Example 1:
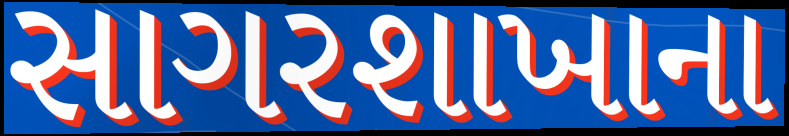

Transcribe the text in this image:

સાગરશાખાના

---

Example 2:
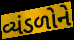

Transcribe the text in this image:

વ્યંડળોને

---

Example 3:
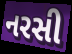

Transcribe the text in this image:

નરસી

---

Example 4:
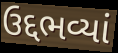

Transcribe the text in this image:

ઉદ્દભવ્યાં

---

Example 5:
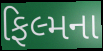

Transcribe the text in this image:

ફિલ્મના